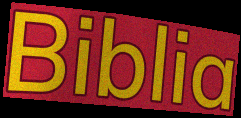
Biblia